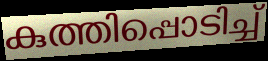
കുത്തിപ്പൊടിച്ച്